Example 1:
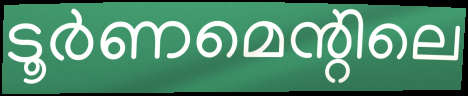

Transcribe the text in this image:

ടൂർണമെന്റിലെ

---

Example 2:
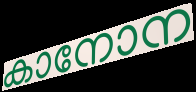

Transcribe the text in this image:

കാനോന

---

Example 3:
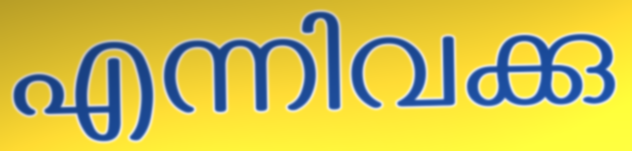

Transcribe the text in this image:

എന്നിവക്കു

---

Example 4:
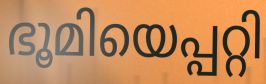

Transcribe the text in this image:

ഭൂമിയെപ്പറ്റി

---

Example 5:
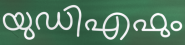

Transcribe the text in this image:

യുഡിഎഫും